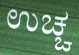
ಉಚ್ಚ